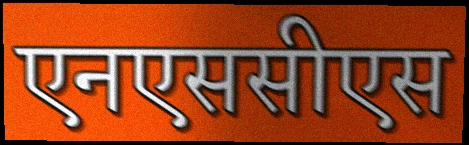
एनएससीएस